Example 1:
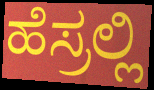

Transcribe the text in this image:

ಹೆಸ್ರಲ್ಲಿ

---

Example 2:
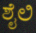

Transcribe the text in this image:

ಶೈಲಿ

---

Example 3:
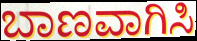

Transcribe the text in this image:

ಬಾಣವಾಗಿಸಿ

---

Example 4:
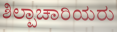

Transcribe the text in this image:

ಶಿಲ್ಪಾಚಾರಿಯರು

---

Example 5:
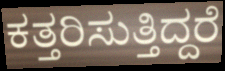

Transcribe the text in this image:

ಕತ್ತರಿಸುತ್ತಿದ್ದರೆ